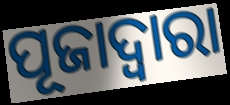
ପୂଜାଦ୍ଵାରା